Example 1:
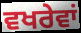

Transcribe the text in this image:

ਵਖਰੇਵਾਂ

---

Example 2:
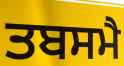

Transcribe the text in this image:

ਤਬਸਮੈ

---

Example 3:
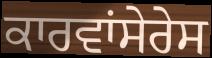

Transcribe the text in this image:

ਕਾਰਵਾਂਸੇਰੇਸ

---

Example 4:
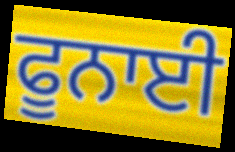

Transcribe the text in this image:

ਫੂਨਾਈ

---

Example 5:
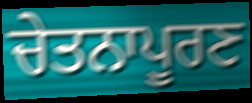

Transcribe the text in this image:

ਚੇਤਨਾਪੂਰਣ